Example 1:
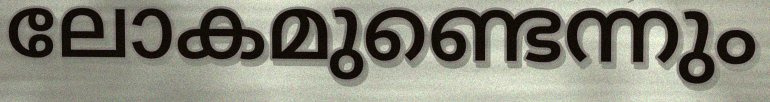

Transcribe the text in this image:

ലോകമുണ്ടെന്നും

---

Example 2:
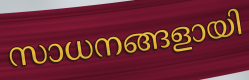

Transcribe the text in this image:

സാധനങ്ങളായി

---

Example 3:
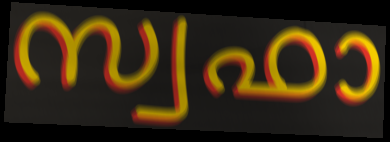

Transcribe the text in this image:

സ്വഫാ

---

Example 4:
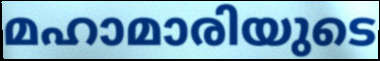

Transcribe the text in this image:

മഹാമാരിയുടെ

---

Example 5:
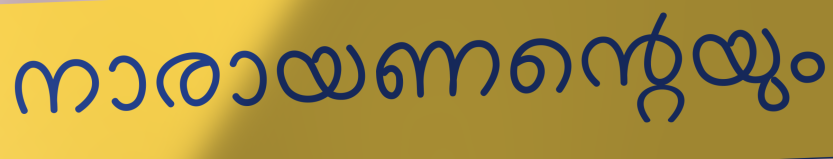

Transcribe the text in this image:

നാരായണന്റെയും